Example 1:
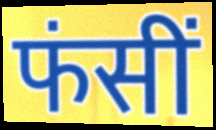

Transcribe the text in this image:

फंसीं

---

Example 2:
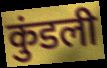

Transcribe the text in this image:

कुंडली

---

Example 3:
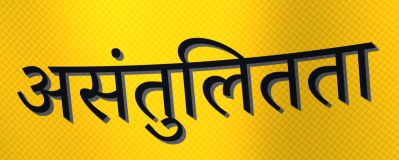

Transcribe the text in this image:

असंतुलितता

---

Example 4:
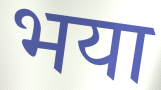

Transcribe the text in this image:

भया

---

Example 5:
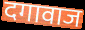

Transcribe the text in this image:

दगावाज